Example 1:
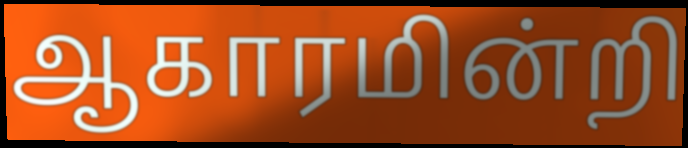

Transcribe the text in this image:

ஆகாரமின்றி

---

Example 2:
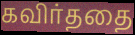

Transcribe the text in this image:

கவிர்ததை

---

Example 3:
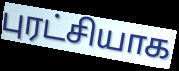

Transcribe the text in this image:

புரட்சியாக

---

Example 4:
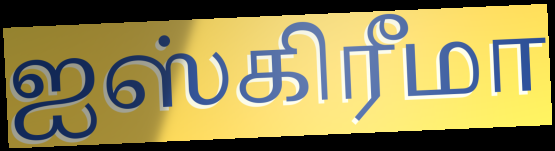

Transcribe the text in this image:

ஐஸ்கிரீமா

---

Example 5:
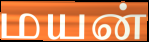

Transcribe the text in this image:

மயன்